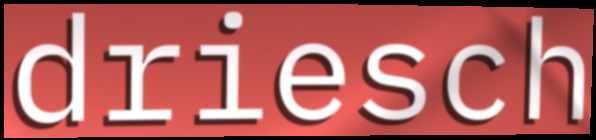
driesch